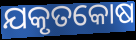
ଯକୃତକୋଷ